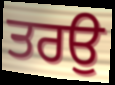
ਤਰਉ